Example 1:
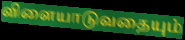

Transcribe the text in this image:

விளையாடுவதையும்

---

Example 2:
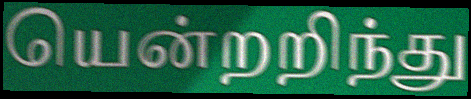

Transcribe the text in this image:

யென்றறிந்து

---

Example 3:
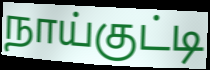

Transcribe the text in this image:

நாய்குட்டி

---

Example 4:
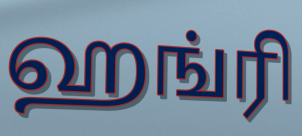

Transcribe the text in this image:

ஹங்ரி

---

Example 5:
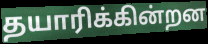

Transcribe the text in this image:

தயாரிக்கின்றன